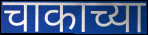
चाकाच्या